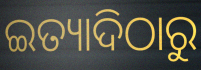
ଇତ୍ୟାଦିଠାରୁ